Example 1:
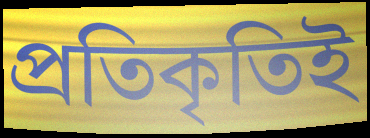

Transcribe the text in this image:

প্রতিকৃতিই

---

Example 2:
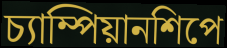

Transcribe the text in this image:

চ্যাম্পিয়ানশিপে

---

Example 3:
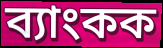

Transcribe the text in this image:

ব্যাংকক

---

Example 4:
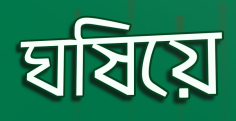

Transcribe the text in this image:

ঘষিয়ে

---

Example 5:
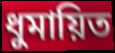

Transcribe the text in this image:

ধুমায়িত